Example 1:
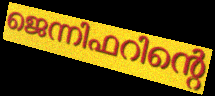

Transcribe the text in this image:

ജെന്നിഫറിന്റെ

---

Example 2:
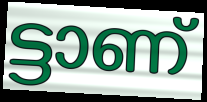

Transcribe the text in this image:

ട്ടാണ്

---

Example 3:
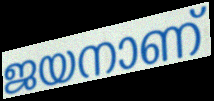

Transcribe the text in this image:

ജയനാണ്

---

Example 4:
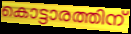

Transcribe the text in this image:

കൊട്ടാരത്തിന്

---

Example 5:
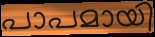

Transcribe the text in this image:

പാപമായി